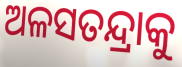
ଅଳସତନ୍ଦ୍ରାକୁ